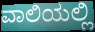
ವಾಲಿಯಲ್ಲಿ